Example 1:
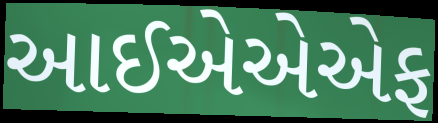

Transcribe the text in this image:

આઈએએએફ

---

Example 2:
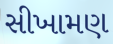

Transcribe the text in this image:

સીખામણ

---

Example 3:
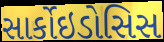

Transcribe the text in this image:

સાર્કોઇડોસિસ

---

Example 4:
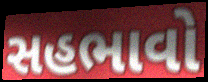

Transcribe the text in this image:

સહભાવો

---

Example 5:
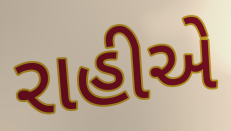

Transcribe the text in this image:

રાહીએ